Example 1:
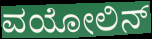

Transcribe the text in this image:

ವಯೋಲಿನ್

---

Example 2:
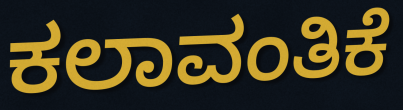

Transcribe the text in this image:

ಕಲಾವಂತಿಕೆ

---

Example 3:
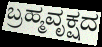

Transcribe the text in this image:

ಬ್ರಹ್ಮವೃಕ್ಷದ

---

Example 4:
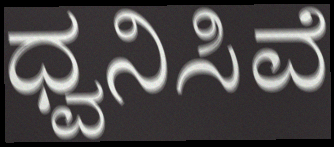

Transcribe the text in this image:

ಧ್ವನಿಸಿವೆ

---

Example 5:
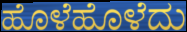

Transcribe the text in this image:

ಹೊಳೆಹೊಳೆದು